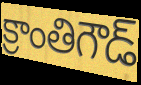
క్రాంతిగౌడ్